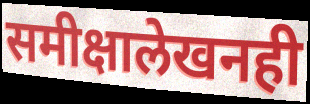
समीक्षालेखनही